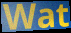
Wat